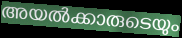
അയൽക്കാരുടെയും